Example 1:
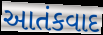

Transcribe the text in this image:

આતંકવાદ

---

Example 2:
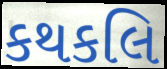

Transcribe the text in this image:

કથકલિ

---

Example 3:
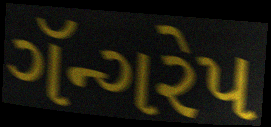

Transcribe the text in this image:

ગૅન્ગરેપ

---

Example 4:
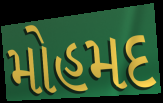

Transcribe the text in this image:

મોહમદ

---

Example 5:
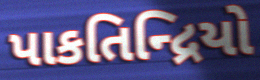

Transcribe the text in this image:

પાકતિન્દ્રિયો